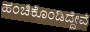
ಹಂಚಿಕೊಂಡಿದ್ದೇವೆ